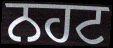
ਨਹਟ